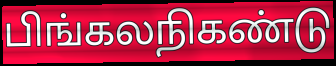
பிங்கலநிகண்டு